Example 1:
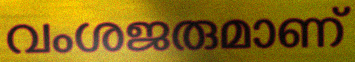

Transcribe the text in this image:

വംശജരുമാണ്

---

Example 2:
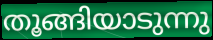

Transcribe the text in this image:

തൂങ്ങിയാടുന്നു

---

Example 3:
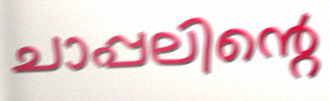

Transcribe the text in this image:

ചാപ്പലിന്റെ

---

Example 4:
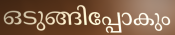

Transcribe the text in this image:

ഒടുങ്ങിപ്പോകും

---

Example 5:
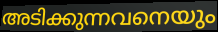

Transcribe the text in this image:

അടിക്കുന്നവനെയും